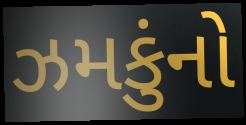
ઝમકુંનો